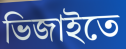
ভিজাইতে